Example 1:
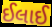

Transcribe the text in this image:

ઈલાઈ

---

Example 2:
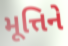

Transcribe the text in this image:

મૂત્તિને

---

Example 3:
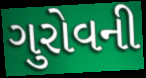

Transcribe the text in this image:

ગુરોવની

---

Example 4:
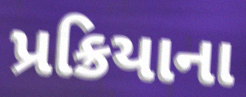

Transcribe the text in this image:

પ્રક્રિયાના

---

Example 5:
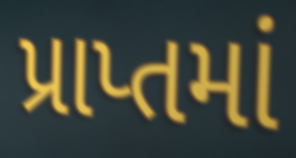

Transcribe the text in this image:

પ્રાપ્તમાં